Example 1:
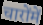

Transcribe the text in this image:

चारोंमें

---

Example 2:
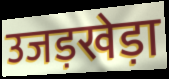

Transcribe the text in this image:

उजड़खेड़ा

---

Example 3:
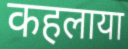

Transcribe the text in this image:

कहलाया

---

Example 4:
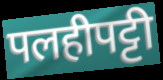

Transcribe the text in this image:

पलहीपट्टी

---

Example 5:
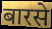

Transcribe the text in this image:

बारसे